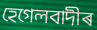
হেগেলবাদীৰ